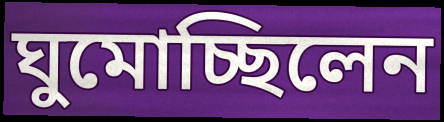
ঘুমোচ্ছিলেন